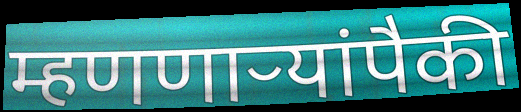
म्हणणाऱ्यांपैकी